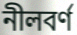
নীলবর্ণ